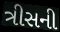
ત્રીસની